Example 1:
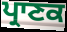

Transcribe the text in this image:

ਪ੍ਰਾਣਕ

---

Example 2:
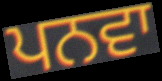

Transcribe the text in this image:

ਪਨਵਾ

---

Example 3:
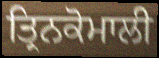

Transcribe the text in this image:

ਤ੍ਰਿਨਕੋਮਾਲੀ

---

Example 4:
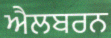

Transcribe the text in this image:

ਐਲਬਰਨ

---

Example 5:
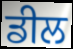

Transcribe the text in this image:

ਡੀਲ